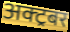
अक्ट्रबर